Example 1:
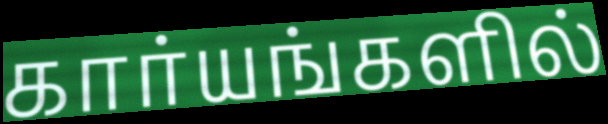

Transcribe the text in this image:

கார்யங்களில்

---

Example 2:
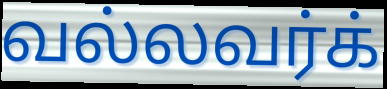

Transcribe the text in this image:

வல்லவர்க்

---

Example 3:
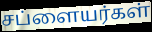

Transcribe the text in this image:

சப்ளையர்கள்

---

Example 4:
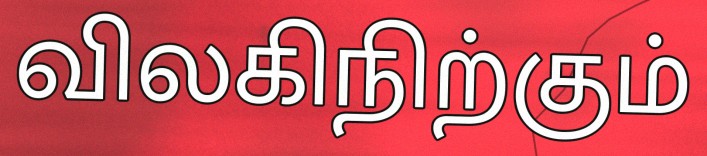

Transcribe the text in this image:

விலகிநிற்கும்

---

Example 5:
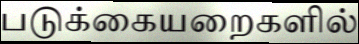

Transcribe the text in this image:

படுக்கையறைகளில்